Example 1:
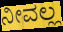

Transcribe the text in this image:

ನೀವಲ್ಲ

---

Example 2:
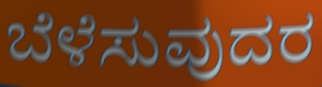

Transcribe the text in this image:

ಬೆಳೆಸುವುದರ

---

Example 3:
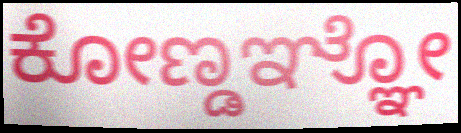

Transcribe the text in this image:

ಕೋಣ್ಡಞ್ಞೋ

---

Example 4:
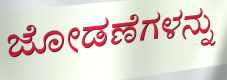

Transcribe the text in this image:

ಜೋಡಣೆಗಳನ್ನು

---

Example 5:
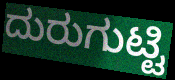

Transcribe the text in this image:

ದುರುಗುಟ್ಟಿ